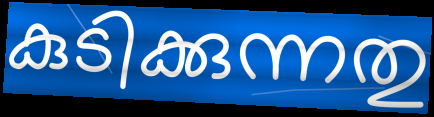
കുടിക്കുന്നതു